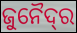
ଜୁନୈଦ୍‌ର